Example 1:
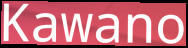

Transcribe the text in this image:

Kawano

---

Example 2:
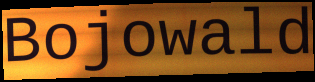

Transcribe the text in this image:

Bojowald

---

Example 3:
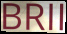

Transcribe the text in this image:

BRII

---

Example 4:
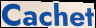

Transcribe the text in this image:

Cachet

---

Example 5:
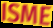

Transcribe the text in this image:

ISME